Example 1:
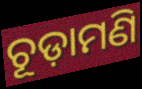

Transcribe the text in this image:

ଚୂଡ଼ାମଣି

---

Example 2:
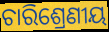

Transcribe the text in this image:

ଚାରିଶ୍ରେଣୀୟ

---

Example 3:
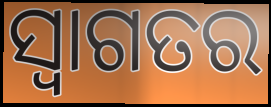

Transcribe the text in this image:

ସ୍ଵାଗତର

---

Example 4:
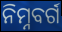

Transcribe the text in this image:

ନିମ୍ନବର୍ଗ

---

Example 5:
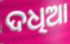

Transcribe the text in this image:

ଦଧିଆ